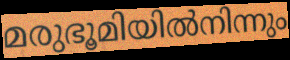
മരുഭൂമിയിൽനിന്നും